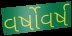
વર્ષોવર્ષ